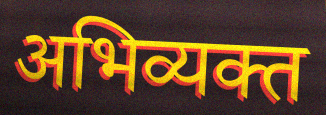
अभिव्यक्त